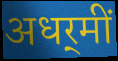
अधर्मीं